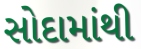
સોદામાંથી